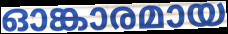
ഓങ്കാരമായ